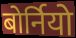
बोर्नियो